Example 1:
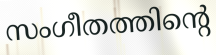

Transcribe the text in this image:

സംഗീതത്തിന്റെ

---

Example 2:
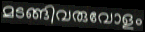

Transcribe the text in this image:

മടങ്ങിവരുവോളം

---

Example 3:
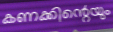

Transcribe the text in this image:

കണക്കിന്റെയും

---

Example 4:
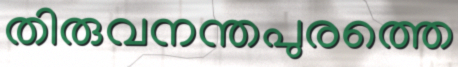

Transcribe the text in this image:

തിരുവനന്തപുരത്തെ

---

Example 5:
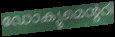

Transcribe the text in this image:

ഡോക്യുമെന്ററി